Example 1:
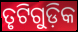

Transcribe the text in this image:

ତୃଟିଗୁଡ଼ିକ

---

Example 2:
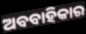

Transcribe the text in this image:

ଅବବାହିକାର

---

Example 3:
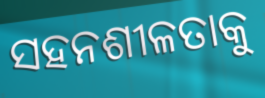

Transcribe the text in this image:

ସହନଶୀଳତାକୁ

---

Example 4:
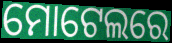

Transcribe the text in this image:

ମୋଟେଲରେ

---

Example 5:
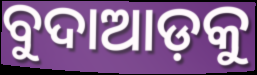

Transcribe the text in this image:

ବୁଦାଆଡ଼କୁ